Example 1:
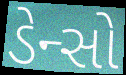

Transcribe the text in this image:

ડેન્સો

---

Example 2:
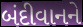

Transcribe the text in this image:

બંદીવાનને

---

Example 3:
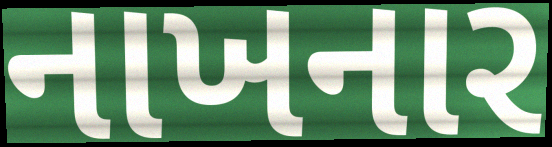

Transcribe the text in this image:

નાખનાર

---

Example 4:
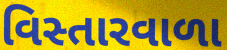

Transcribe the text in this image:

વિસ્તારવાળા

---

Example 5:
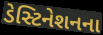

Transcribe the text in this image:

ડેસ્ટિનેશનના